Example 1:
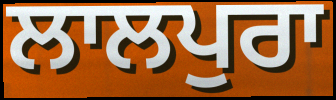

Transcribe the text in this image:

ਲਾਲਪੁਰਾ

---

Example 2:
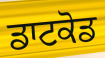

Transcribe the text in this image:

ਡਾਟਕੋਡ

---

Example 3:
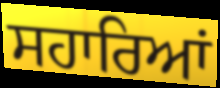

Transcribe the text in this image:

ਸਹਾਰਿਆਂ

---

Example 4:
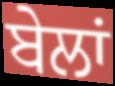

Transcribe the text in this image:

ਬੇਲਾਂ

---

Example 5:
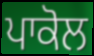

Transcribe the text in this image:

ਪਾਕੋਲ